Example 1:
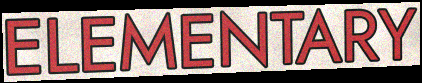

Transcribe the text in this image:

ELEMENTARY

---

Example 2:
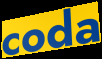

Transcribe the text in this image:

coda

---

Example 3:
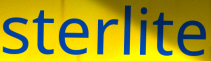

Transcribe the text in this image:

sterlite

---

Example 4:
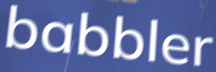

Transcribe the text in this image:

babbler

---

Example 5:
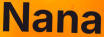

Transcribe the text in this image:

Nana